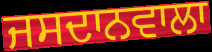
ਜਸਦਾਨਵਾਲਾ